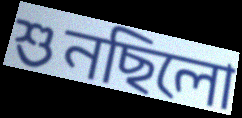
শুনছিলো